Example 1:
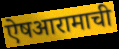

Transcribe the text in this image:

ऐषआरामाची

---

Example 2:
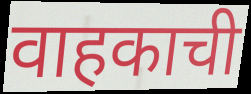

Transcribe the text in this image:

वाहकाची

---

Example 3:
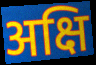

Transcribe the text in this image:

अक्षि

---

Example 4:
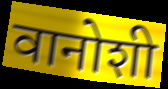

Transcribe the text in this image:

वानोशी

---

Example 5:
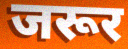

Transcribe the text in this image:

जरूर